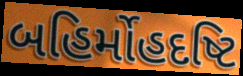
બહિર્મોહદષ્ટિ